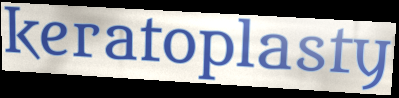
keratoplasty